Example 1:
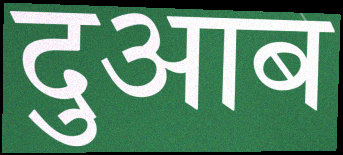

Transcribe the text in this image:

दुआब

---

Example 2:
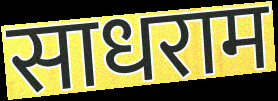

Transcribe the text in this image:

साधराम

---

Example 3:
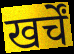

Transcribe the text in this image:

खर्चें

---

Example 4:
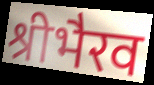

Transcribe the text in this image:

श्रीभैरव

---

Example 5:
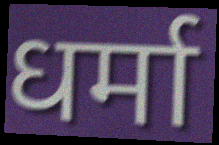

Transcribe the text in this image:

धर्मा